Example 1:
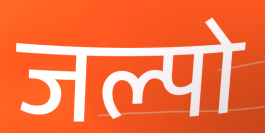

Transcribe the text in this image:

जल्पो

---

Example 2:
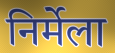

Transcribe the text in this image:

निर्मेला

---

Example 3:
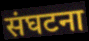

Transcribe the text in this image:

संघटना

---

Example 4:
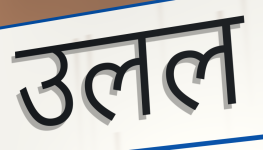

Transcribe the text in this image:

उलल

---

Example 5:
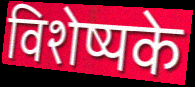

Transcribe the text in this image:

विशेष्यके